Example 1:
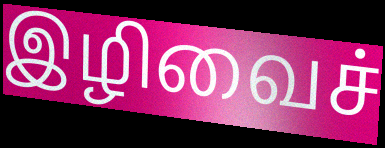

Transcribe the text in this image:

இழிவைச்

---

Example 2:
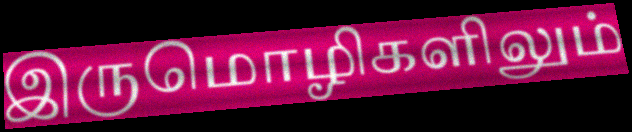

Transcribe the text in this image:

இருமொழிகளிலும்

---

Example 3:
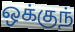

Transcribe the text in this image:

ஒக்குந்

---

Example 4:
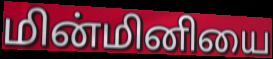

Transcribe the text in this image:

மின்மினியை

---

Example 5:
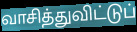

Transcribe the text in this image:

வாசித்துவிட்டுப்